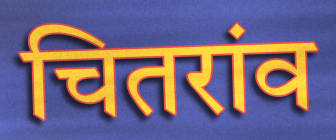
चितरांव